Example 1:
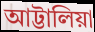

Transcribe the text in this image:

আট্টালিয়া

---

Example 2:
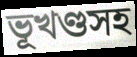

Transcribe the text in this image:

ভূখণ্ডসহ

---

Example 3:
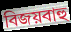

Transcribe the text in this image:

বিজয়বাহু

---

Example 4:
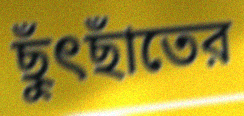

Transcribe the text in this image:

ছুঁৎছাঁতের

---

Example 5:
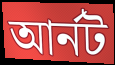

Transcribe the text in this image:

আর্নট